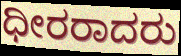
ಧೀರರಾದರು